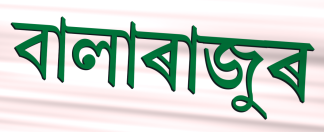
বালাৰাজুৰ